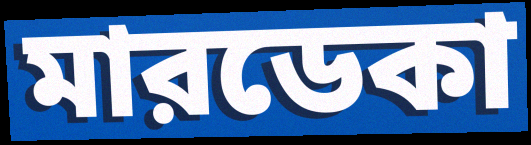
মারডেকা